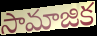
సామాజిక